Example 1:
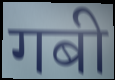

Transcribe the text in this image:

गबी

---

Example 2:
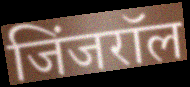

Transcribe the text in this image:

जिंजरॉल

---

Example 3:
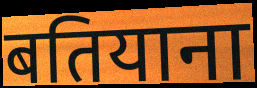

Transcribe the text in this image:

बतियाना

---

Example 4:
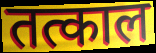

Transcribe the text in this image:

तत्काल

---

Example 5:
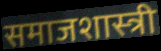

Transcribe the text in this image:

समाजशास्त्री